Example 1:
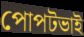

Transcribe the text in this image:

পোপটভাই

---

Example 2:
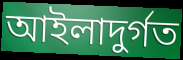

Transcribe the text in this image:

আইলাদুর্গত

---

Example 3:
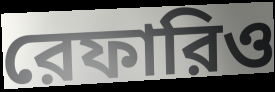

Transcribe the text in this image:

রেফারিও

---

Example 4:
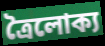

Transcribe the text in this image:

ত্রৈলোক্য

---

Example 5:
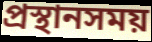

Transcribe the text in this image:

প্রস্থানসময়